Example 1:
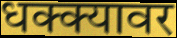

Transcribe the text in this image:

धक्क्यावर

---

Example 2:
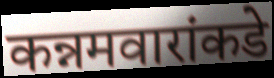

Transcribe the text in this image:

कन्नमवारांकडे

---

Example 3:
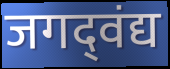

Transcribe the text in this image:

जगद्‌वंद्य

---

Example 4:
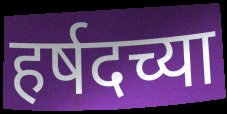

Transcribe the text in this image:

हर्षदच्या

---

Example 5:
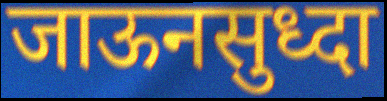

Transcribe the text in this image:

जाऊनसुध्दा